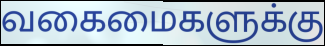
வகைமைகளுக்கு